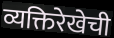
व्यक्तिरेखेची